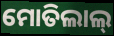
ମୋତିଲାଲ୍